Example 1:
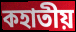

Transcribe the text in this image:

কহাতীয়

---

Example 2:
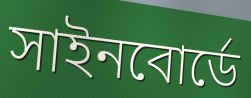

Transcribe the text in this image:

সাইনবোর্ডে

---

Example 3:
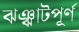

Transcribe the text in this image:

ঝঞ্ঝাটপূর্ণ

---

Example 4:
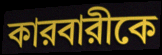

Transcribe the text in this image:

কারবারীকে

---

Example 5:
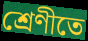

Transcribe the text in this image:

শ্রেণীতে